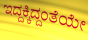
ಇದ್ದಕ್ಕಿದ್ದಂತೆಯೇ